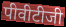
पीवीटीजी